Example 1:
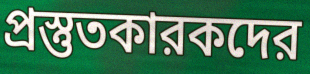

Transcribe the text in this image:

প্রস্তুতকারকদের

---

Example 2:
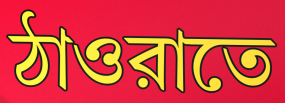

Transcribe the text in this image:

ঠাওরাতে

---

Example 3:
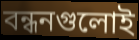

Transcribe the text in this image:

বন্ধনগুলোই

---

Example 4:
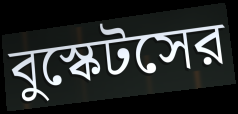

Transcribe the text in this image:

বুস্কেটসের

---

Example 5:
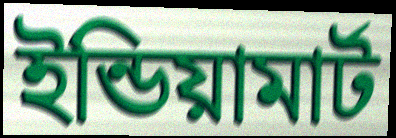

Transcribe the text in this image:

ইন্ডিয়ামার্ট